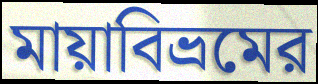
মায়াবিভ্রমের